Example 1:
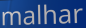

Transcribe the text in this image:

malhar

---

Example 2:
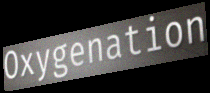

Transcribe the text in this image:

Oxygenation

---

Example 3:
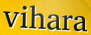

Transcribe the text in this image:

vihara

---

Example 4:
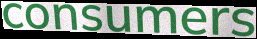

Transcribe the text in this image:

consumers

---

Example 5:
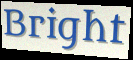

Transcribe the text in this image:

Bright